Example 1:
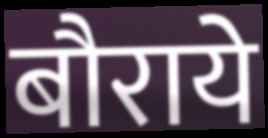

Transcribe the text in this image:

बौराये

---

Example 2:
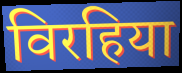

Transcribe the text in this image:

विरहिया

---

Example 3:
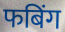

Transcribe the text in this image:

फबिंग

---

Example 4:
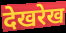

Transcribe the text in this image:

देखरेख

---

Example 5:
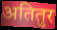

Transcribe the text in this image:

अतितुर